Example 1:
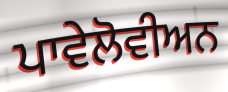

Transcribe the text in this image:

ਪਾਵੇਲੋਵੀਅਨ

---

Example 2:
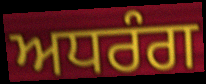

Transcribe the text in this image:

ਅਧਰੰਗ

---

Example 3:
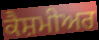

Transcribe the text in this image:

ਕੈਸ਼ਮੀਅਰ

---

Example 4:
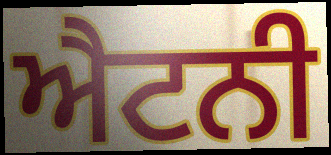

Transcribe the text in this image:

ਐਟਨੀ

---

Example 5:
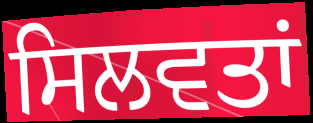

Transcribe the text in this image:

ਸਿਲਵਤਾਂ